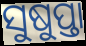
ସୁଷୁପ୍ତା